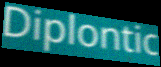
Diplontic